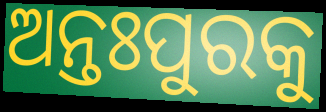
ଅନ୍ତଃପୁରକୁ